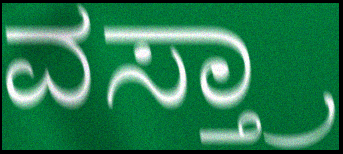
ವಸ್ತ್ರಾ